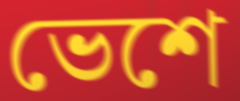
ভেশে